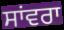
ਸਾਂਵਰਾ